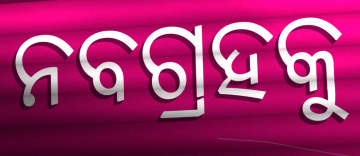
ନବଗ୍ରହକୁ